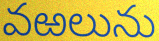
వఱలును